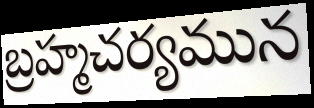
బ్రహ్మచర్యమున